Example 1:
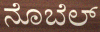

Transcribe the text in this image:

ನೊಬೆಲ್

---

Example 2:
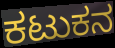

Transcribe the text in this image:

ಕಟುಕನ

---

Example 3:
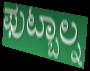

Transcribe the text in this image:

ಫುಟ್ಬಾಲ್ನ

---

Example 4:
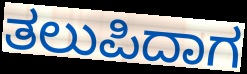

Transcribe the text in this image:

ತಲುಪಿದಾಗ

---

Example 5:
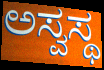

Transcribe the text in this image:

ಅಸ್ವಸ್ಥ